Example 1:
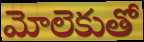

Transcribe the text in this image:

మోలెకుతో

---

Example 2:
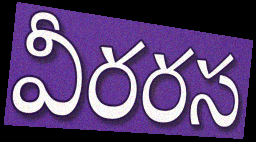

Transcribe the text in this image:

వీరరస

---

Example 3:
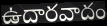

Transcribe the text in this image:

ఉదారవాదం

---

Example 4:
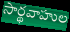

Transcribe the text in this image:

సార్థవాహుల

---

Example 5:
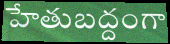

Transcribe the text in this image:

హేతుబద్దంగా